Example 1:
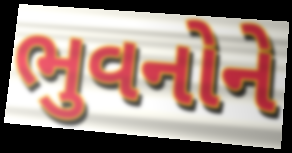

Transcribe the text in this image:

ભુવનોને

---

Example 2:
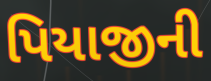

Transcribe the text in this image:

પિયાજીની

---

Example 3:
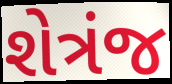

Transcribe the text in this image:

શેત્રંજ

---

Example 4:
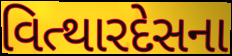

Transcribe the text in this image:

વિત્થારદેસના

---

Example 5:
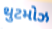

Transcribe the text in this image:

થુટમોઝ